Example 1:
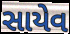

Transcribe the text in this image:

સાયેવ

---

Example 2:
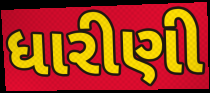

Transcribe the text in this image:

ધારીણી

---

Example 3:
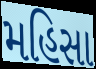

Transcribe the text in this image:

મહિસા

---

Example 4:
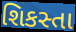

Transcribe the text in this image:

શિકસ્તા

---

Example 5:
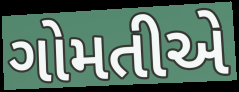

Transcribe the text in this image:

ગોમતીએ